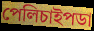
পেলিচাইপডা